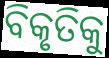
ବିକୃତିକୁ